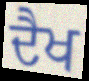
ਦੈਖ